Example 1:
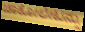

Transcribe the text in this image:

ಚಾಕೋಲೇಟನ್ನು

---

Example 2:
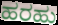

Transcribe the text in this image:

ಹರಹು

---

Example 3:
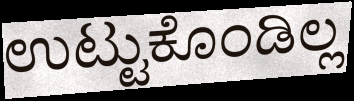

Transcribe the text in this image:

ಉಟ್ಟುಕೊಂಡಿಲ್ಲ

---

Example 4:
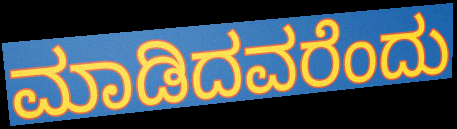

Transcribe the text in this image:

ಮಾಡಿದವರೆಂದು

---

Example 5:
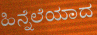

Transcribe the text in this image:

ಹಿನ್ನೆಲೆಯಾದ